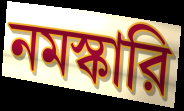
নমস্কারি